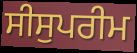
ਸੀਸੁਪਰੀਮ